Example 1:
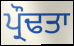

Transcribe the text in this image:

ਪ੍ਰੌਢਤਾ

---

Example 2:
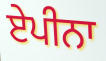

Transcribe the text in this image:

ਏਪੀਨਾ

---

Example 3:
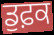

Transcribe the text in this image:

ਡੁਫ਼ਕ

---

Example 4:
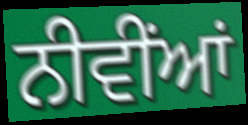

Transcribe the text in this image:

ਨੀਵੀਂਆਂ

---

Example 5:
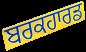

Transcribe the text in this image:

ਬਰਕਹਾਰਡ